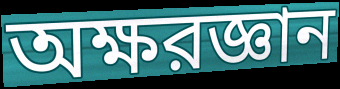
অক্ষরজ্ঞান